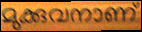
മുക്കുവനാണ്